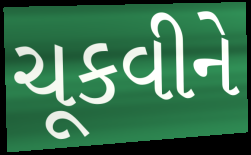
ચૂકવીને